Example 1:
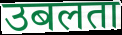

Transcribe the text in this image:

उबलता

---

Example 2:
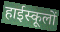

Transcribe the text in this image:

हाईस्कूलों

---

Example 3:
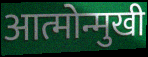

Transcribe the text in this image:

आत्मोन्मुखी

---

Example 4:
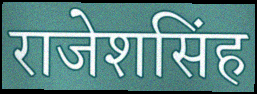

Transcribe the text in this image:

राजेशसिंह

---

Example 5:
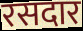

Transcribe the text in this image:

रसदार